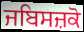
ਜਬਿਸਜ਼ਕੋ